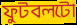
ফুটবলটো